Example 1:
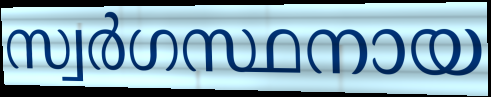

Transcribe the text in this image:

സ്വർഗസ്ഥനായ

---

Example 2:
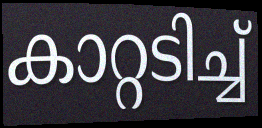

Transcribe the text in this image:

കാറ്റടിച്ച്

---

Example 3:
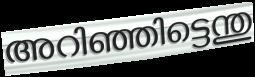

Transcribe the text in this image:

അറിഞ്ഞിട്ടെന്തു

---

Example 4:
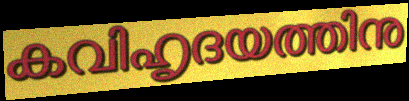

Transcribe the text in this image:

കവിഹൃദയത്തിനു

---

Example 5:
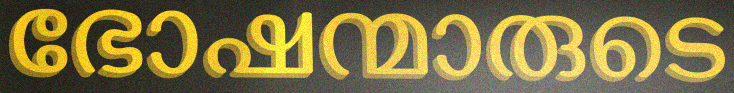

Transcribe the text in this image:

ഭോഷന്മാരുടെ